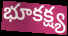
భూకక్ష్య